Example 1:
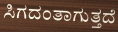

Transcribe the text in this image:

ಸಿಗದಂತಾಗುತ್ತದೆ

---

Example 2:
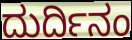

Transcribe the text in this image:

ದುರ್ದಿನಂ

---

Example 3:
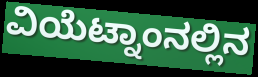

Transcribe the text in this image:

ವಿಯೆಟ್ನಾಂನಲ್ಲಿನ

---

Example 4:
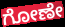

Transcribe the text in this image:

ಗೋಣೇ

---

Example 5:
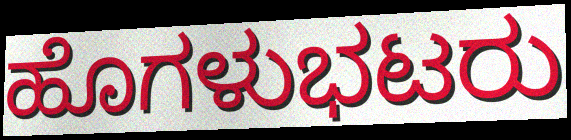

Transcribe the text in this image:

ಹೊಗಳುಭಟರು